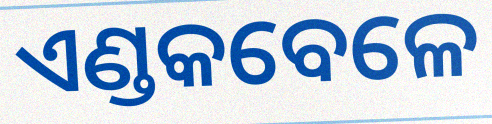
ଏଣ୍ଡକବେଳେ